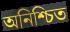
অনিশ্চিত